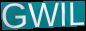
GWIL